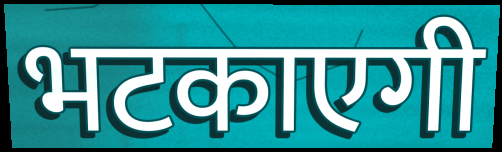
भटकाएगी